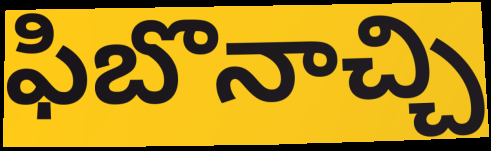
ఫిబొనాచ్చి